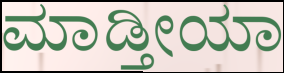
ಮಾಡ್ತೀಯಾ